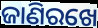
ଜାଣିରଖେ